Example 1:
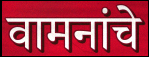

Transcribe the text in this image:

वामनांचे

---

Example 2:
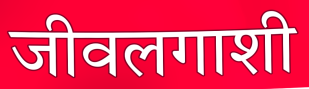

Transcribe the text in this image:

जीवलगाशी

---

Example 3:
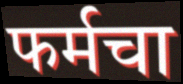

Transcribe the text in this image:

फर्मचा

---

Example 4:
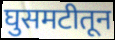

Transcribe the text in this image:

घुसमटीतून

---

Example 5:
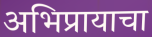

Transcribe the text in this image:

अभिप्रायाचा